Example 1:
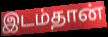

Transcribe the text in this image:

இடம்தான்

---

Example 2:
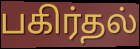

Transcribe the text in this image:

பகிர்தல்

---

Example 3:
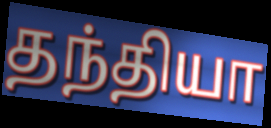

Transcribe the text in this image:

தந்தியா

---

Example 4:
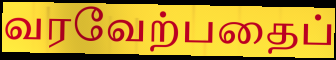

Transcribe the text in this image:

வரவேற்பதைப்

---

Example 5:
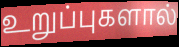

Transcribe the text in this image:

உறுப்புகளால்